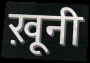
ख़ूनी